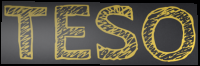
TESO